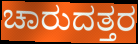
ಚಾರುದತ್ತರ